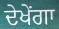
ਦੇਖੇਂਗਾ